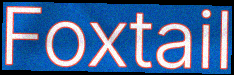
Foxtail